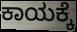
ಕಾಯಕ್ಕೆ